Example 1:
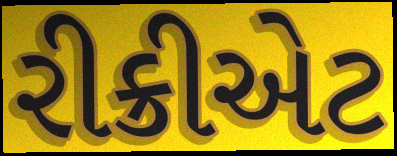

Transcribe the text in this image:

રીક્રીએટ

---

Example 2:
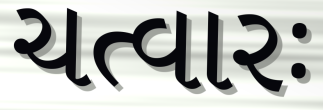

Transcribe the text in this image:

ચત્વારઃ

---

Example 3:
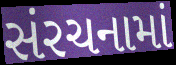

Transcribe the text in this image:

સંરચનામાં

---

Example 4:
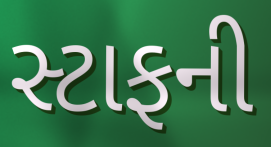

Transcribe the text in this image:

સ્ટાફની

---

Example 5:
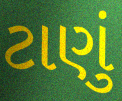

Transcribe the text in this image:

ટાણું